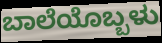
ಬಾಲೆಯೊಬ್ಬಳು